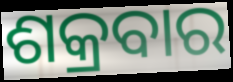
ଶକ୍ରବାର